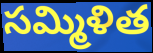
సమ్మిళిత